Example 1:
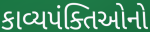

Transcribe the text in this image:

કાવ્યપંક્તિઓનો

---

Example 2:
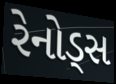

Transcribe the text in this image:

રેનોડ્સ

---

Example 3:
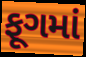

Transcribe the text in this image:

ફૂગમાં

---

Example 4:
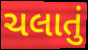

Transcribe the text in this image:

ચલાતું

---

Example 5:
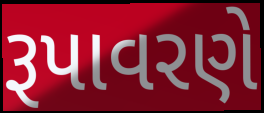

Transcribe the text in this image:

રૂપાવરણે